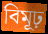
বিমূঢ়